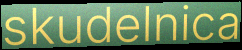
skudelnica